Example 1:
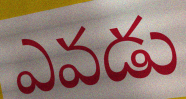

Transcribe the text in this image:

ఎవడు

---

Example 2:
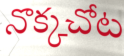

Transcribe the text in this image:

నొక్కచోట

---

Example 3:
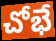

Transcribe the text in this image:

చోభే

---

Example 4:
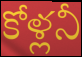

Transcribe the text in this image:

కోళ్లనీ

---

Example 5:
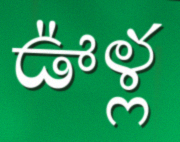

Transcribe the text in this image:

ఊళ్ల